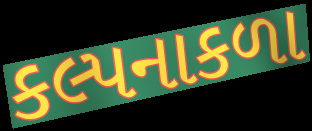
કલ્પનાકળા